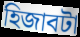
হিজাবটা